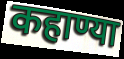
कहाण्या